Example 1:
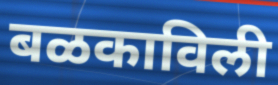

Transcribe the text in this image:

बळकाविली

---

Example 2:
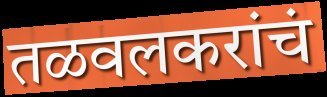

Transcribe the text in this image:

तळवलकरांचं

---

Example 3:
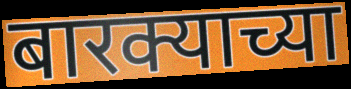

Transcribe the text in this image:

बारक्याच्या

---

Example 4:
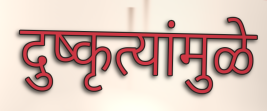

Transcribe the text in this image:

दुष्कृत्यांमुळे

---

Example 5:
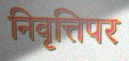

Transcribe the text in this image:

निवृत्तिपर